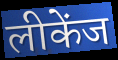
लीकेंज